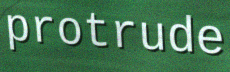
protrude